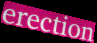
erection